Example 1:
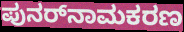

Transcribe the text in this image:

ಪುನರ್‌ನಾಮಕರಣ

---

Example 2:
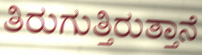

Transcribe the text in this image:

ತಿರುಗುತ್ತಿರುತ್ತಾನೆ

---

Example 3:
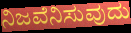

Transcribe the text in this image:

ನಿಜವೆನಿಸುವುದು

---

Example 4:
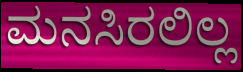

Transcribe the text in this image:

ಮನಸಿರಲಿಲ್ಲ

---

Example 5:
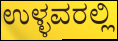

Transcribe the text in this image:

ಉಳ್ಳವರಲ್ಲಿ